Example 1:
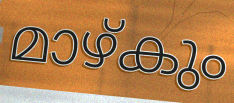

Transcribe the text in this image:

മാഴ്കും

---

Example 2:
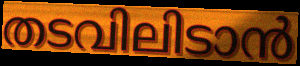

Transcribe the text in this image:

തടവിലിടാൻ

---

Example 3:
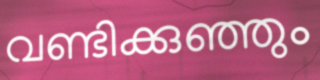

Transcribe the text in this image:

വണ്ടിക്കുഞ്ഞും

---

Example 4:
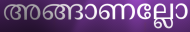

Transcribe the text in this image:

അങ്ങാണല്ലോ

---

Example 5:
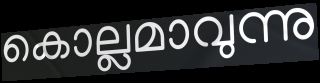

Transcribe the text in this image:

കൊല്ലമാവുന്നു